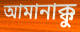
আমানাক্কু